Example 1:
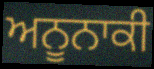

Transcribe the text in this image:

ਅਨੂਨਾਕੀ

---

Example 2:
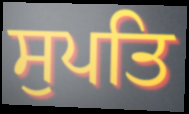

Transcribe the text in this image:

ਸੁਪਤਿ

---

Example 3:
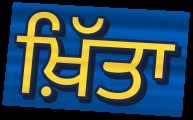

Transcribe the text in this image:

ਖ਼ਿੱਤਾ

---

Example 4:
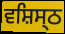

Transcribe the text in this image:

ਵਸ਼ਿਸ੍ਠ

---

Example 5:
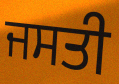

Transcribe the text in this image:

ਜਸਤੀ